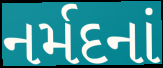
નર્મદનાં